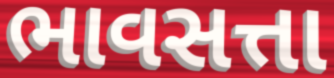
ભાવસત્તા